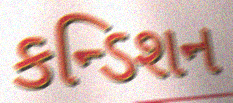
કન્ડિશન